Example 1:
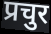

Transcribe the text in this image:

प्रचुर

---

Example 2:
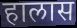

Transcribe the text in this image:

हालास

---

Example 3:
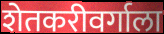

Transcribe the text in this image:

शेतकरीवर्गाला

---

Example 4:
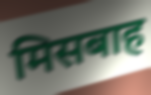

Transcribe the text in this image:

मिसबाह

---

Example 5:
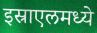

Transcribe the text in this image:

इस्राएलमध्ये